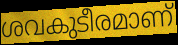
ശവകുടീരമാണ്